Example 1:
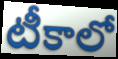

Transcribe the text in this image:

టీకాలో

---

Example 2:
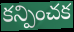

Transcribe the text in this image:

కన్పించక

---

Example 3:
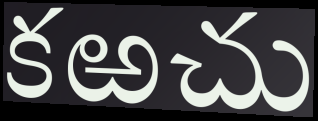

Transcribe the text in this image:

కఱచు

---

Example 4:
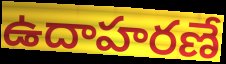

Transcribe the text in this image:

ఉదాహరణే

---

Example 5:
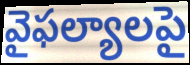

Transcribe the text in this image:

వైఫల్యాలపై